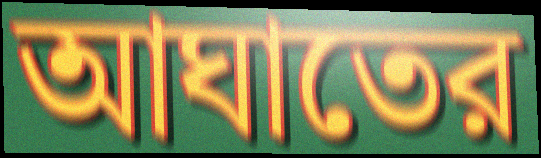
আঘাতের